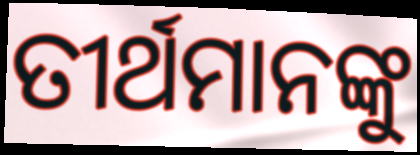
ତୀର୍ଥମାନଙ୍କୁ